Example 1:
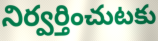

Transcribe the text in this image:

నిర్వర్తించుటకు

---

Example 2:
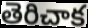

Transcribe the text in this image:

తెరిచాక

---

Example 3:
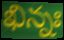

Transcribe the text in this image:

ఖిన్నః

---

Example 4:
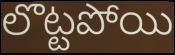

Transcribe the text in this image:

లొట్టపోయి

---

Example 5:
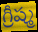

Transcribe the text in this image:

గ్రీష్మ